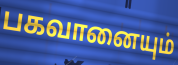
பகவானையும்